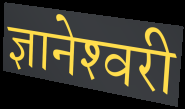
ज्ञानेश्‍वरी